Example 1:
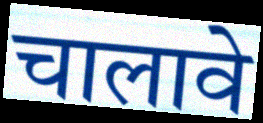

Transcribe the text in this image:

चालावे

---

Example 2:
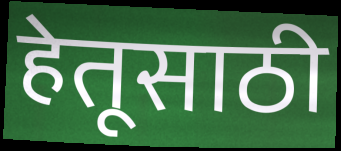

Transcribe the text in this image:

हेतूसाठी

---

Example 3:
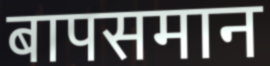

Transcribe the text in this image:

बापसमान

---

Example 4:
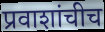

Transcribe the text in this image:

प्रवाशांचीच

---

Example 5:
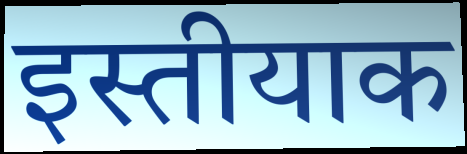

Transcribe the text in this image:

इस्तीयाक